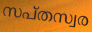
സപ്തസ്വര